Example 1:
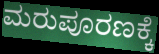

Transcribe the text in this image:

ಮರುಪೂರಣಕ್ಕೆ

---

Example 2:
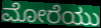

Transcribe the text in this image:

ಮೋರೆಯು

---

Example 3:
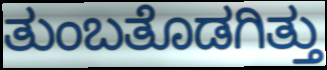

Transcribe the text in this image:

ತುಂಬತೊಡಗಿತ್ತು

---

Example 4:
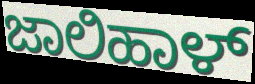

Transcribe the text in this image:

ಜಾಲಿಹಾಳ್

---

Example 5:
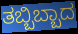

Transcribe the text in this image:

ತಬ್ಬಿಬ್ಬಾದ